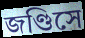
জণ্ডিসে